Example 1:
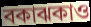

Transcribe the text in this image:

বকাঝকাও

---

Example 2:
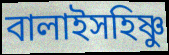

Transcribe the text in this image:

বালাইসহিষ্ণু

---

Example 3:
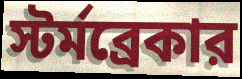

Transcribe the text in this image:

স্টর্মব্রেকার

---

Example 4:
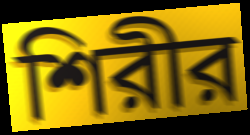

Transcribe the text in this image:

শিরীর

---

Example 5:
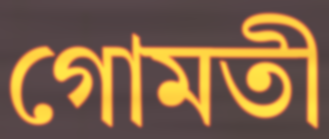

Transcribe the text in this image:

গোমতী